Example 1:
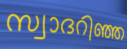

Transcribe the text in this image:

സ്വാദറിഞ്ഞ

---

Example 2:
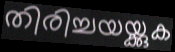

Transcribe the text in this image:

തിരിച്ചയയ്ക്കുക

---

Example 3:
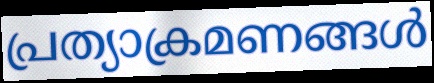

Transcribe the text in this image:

പ്രത്യാക്രമണങ്ങൾ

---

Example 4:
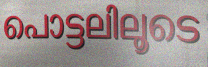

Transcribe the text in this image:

പൊട്ടലിലൂടെ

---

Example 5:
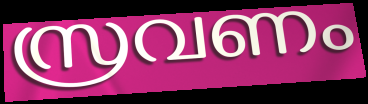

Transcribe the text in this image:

സ്രവണം